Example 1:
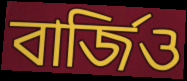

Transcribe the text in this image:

বার্জিও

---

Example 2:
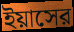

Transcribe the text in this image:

ইয়াসের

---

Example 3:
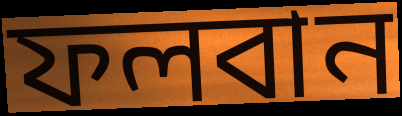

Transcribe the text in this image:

ফলবান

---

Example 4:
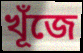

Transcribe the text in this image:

খূঁজে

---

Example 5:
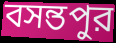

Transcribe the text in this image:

বসন্তপুর